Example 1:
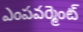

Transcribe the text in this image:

ఎంపవర్మెంట్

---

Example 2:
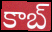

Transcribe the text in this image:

కాబ్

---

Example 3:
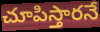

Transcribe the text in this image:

చూపిస్తారనే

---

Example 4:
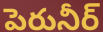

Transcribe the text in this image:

పెరునీర్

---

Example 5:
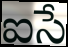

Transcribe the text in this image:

ఐసే